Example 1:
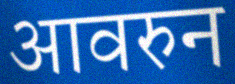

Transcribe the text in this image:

आवरुन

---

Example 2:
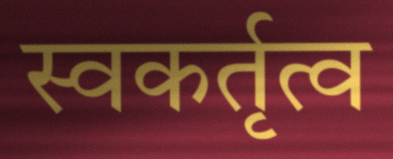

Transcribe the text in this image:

स्वकर्तृत्व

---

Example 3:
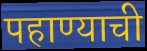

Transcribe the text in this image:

पहाण्याची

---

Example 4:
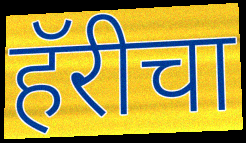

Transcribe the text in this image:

हॅरीचा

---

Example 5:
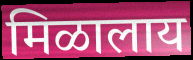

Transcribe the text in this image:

मिळालाय